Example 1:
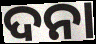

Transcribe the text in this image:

ଦନା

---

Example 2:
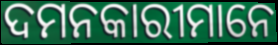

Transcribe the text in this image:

ଦମନକାରୀମାନେ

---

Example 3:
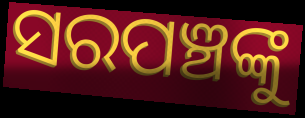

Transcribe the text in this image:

ସରପଞ୍ଚଙ୍କୁ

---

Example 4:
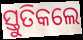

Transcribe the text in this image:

ସ୍ତୁତିକଲେ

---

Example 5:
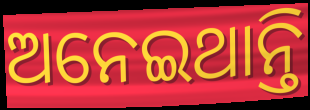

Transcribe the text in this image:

ଅନେଇଥାନ୍ତି